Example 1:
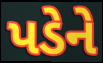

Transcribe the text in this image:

પડેને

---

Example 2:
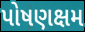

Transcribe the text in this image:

પોષણક્ષમ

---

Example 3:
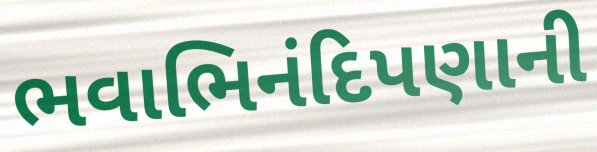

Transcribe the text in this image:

ભવાભિનંદિપણાની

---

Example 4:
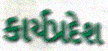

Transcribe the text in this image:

કાર્યપ્રદેશ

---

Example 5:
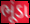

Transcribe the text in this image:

ભૂંડા